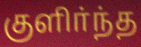
குளிர்ந்த